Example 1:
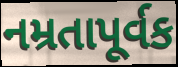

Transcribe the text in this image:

નમ્રતાપૂર્વક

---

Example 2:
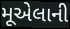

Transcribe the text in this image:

મૂએલાની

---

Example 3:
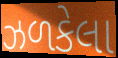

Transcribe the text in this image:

ઝળકેલા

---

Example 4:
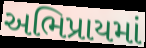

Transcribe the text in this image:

અભિપ્રાયમાં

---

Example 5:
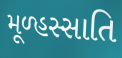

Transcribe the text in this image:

મૂળ્હસ્સાતિ